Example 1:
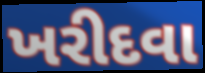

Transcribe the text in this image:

ખરીદવા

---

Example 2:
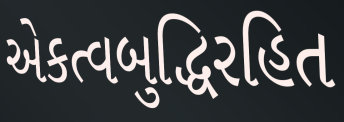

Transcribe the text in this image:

એકત્વબુદ્ધિરહિત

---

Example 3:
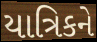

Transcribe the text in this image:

યાત્રિકને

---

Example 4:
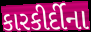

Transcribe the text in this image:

કારકીર્દીના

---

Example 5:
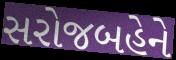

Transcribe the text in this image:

સરોજબહેને